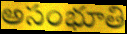
అసంభూతి